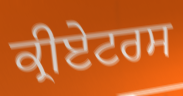
ਕ੍ਰੀਏਟਰਸ